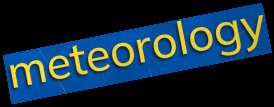
meteorology